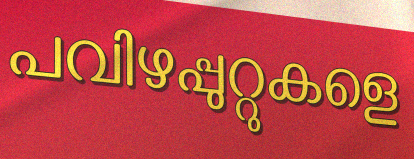
പവിഴപ്പുറ്റുകളെ